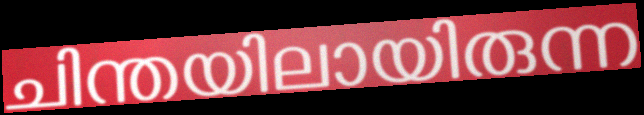
ചിന്തയിലായിരുന്ന